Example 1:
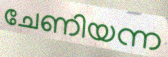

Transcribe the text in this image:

ചേണിയന്ന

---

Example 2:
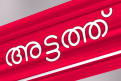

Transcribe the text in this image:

അട്ടത്ത്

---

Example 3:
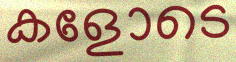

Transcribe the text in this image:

കളോടെ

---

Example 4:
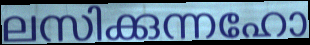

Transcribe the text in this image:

ലസിക്കുന്നഹോ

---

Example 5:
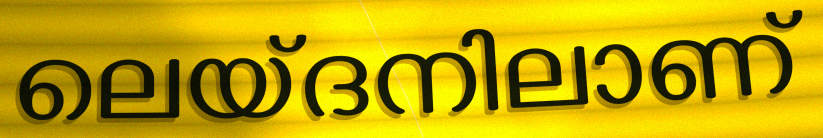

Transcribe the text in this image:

ലെയ്ദനിലാണ്